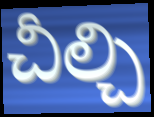
చీల్చి